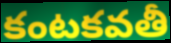
కంటకవతీ